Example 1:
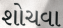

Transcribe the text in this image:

શોચવા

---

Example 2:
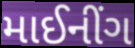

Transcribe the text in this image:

માઈનીંગ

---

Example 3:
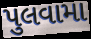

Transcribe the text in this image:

પુલવામા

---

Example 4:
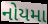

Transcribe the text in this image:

નોયમા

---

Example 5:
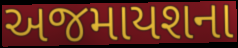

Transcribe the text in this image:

અજમાયશના